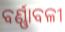
ବର୍ଣ୍ଣାବଳୀ